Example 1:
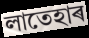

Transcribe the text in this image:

লাতেহাৰ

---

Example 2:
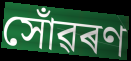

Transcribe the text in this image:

সোঁৱৰণ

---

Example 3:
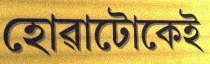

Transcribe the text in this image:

হোৱাটোকেই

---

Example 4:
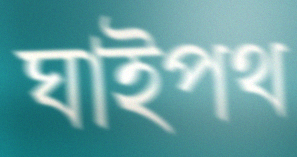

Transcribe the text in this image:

ঘাইপথ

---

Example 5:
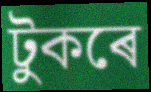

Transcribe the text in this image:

টুকৰে